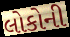
લોકોની